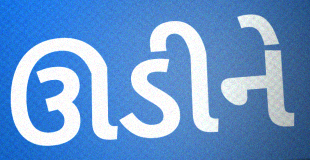
ઊડીને